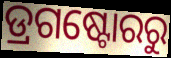
ଡ୍ରଗଷ୍ଟୋରରୁ